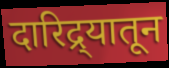
दारिद्र्यातून